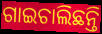
ଗାଇଚାଲିଛନ୍ତି